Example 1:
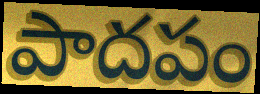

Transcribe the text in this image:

పాదపం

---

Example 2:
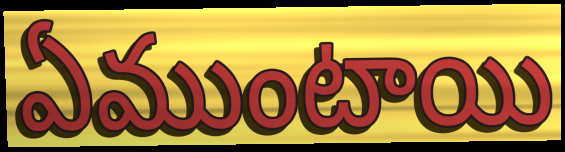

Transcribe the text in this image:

ఏముంటాయి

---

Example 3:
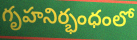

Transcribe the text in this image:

గృహనిర్భంధంలో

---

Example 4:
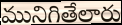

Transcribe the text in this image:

మునిగితేలారు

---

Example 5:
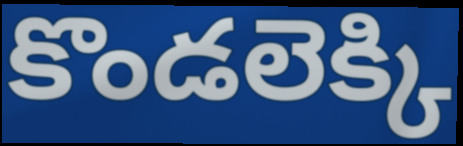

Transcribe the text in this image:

కొండలెక్కి